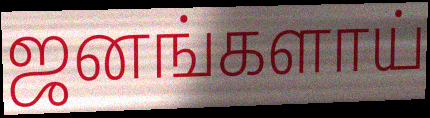
ஜனங்களாய்